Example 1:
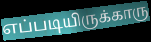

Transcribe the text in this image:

எப்படியிருக்காரு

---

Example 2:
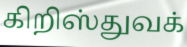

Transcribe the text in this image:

கிறிஸ்துவக்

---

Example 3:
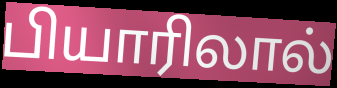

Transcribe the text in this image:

பியாரிலால்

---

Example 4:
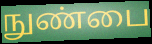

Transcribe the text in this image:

நுண்பை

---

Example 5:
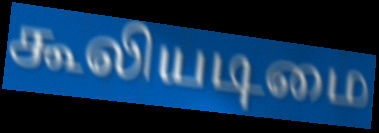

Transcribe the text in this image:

கூலியடிமை